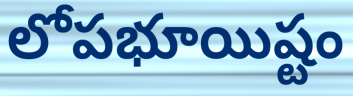
లోపభూయిష్టం